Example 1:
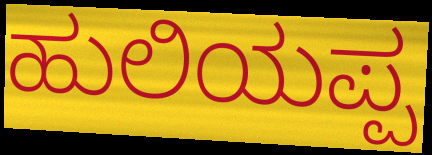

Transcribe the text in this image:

ಹುಲಿಯಪ್ಪ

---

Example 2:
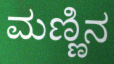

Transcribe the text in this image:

ಮಣ್ಣಿನ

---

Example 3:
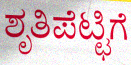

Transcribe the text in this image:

ಶೃತಿಪೆಟ್ಟಿಗೆ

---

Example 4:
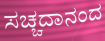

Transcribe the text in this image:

ಸಚ್ಚದಾನಂದ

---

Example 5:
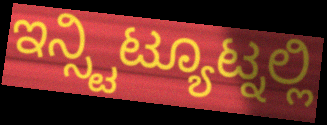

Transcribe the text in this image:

ಇನ್ಸ್ಟಿಟ್ಯೂಟ್ನಲ್ಲಿ